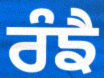
ਰੰਙੈ